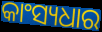
କାଂସ୍ୟଧାର